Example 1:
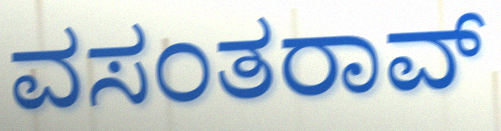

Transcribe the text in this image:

ವಸಂತರಾವ್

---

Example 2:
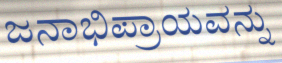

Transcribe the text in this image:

ಜನಾಭಿಪ್ರಾಯವನ್ನು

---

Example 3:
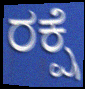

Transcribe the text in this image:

ರಕ್ಷೆ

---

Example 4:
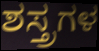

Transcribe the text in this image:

ಶಸ್ತ್ರಗಳ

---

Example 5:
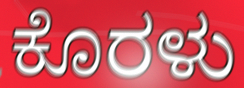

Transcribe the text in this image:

ಕೊರಳು